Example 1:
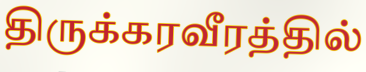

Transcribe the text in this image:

திருக்கரவீரத்தில்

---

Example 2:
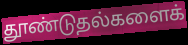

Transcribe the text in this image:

தூண்டுதல்களைக்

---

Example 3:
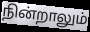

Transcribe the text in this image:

நின்றாலும்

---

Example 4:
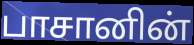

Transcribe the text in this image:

பாசானின்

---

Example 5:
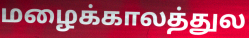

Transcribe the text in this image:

மழைக்காலத்துல